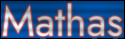
Mathas